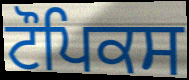
ਟੌਪਿਕਸ